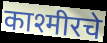
काश्मीरचे